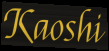
Kaoshi